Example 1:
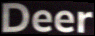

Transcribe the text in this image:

Deer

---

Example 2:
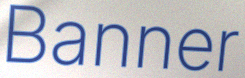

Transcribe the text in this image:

Banner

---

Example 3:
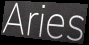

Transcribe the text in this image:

Aries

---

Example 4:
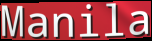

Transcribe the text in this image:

Manila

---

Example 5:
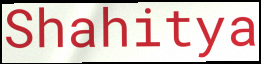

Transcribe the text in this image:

Shahitya